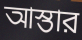
আস্তার